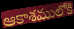
ఆకాశములోకి